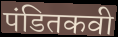
पंडितकवी